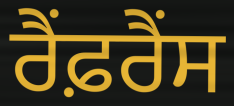
ਰੈਂਫ਼ਰੈਂਸ